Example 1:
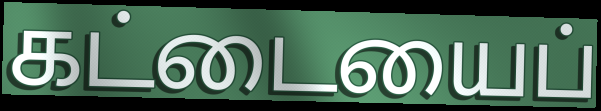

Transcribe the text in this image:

கட்டையைப்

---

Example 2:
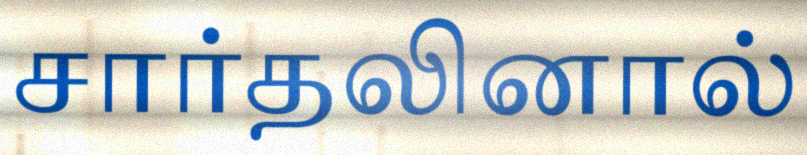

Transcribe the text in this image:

சார்தலினால்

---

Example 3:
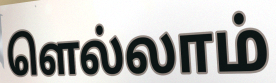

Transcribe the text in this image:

ளெல்லாம்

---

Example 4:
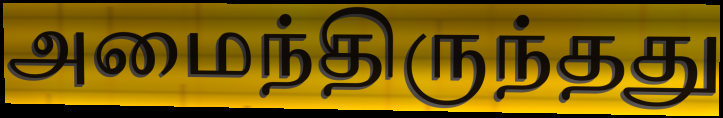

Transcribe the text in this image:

அமைந்திருந்தது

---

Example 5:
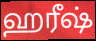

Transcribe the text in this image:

ஹரீஷ்